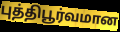
புத்திபூர்வமான